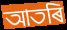
আতৰি